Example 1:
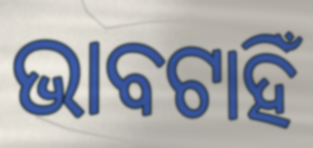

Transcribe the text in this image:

ଭାବଟାହିଁ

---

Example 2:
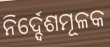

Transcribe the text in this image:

ନିର୍ଦ୍ଦେଶମୂଳକ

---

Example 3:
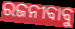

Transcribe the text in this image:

ରଜନୀବାବୁ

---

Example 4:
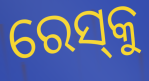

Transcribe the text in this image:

ରେସ୍‌କୁ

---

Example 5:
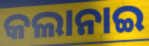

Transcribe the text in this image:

କଲାନାଇ